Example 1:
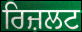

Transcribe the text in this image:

ਰਿਜ਼ਲਟ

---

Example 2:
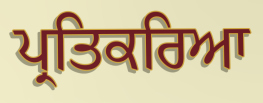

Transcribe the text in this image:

ਪ੍ਰਤਿਕਰਿਆ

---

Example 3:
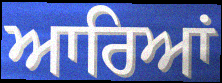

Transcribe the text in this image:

ਆਰਿਆਂ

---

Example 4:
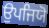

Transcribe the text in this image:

ਉਪਜਿਯੋ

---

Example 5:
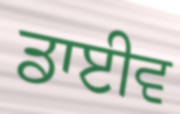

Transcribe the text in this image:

ਡਾਈਵ